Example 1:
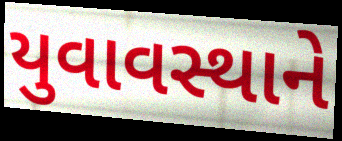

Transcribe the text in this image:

યુવાવસ્થાને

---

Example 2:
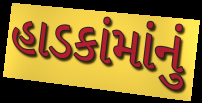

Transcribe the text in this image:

હાડકાંમાંનું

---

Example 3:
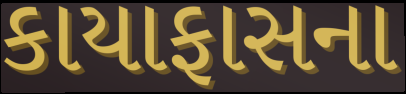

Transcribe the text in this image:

કાયાફાસના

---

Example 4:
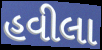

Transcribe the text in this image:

હવીલા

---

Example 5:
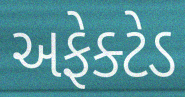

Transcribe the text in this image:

અફેક્ટેડ